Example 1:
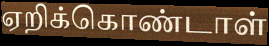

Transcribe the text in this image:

ஏறிக்கொண்டாள்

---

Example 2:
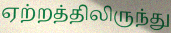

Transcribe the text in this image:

ஏற்றத்திலிருந்து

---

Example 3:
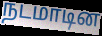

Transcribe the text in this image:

நடமாடின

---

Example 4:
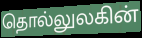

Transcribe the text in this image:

தொல்லுலகின்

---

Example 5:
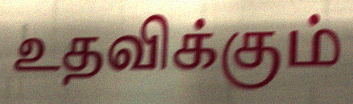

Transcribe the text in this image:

உதவிக்கும்